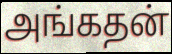
அங்கதன்